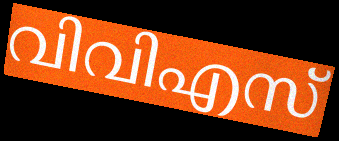
വിവിഎസ്